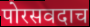
पोरसवदाच